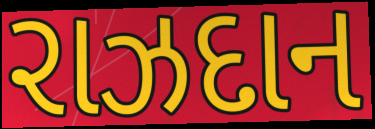
રાઝદાન